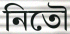
নিতৌ